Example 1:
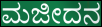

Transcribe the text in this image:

ಮಜೀದನ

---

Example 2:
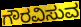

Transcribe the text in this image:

ಗೌರವಿಸುವ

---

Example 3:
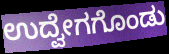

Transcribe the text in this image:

ಉದ್ವೇಗಗೊಂಡು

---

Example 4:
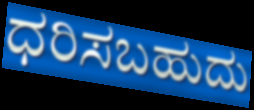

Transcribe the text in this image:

ಧರಿಸಬಹುದು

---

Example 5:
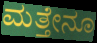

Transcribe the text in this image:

ಮತ್ತೇನೂ